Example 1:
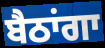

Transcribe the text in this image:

ਬੈਠਾਂਗਾ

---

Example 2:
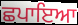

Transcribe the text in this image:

ਛਪਾਇਆ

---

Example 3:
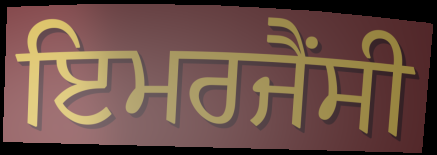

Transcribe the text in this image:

ਇਮਰਜੈਂਸੀ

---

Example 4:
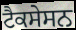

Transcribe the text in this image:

ਟੈਕਸੇਸਨ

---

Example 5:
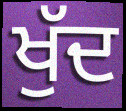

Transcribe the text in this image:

ਖੁੱਦ